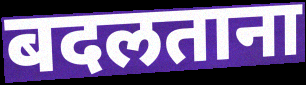
बदलताना